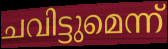
ചവിട്ടുമെന്ന്